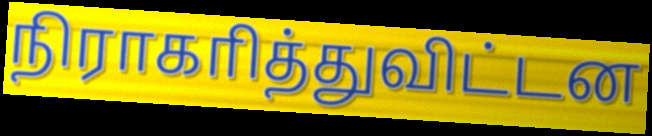
நிராகரித்துவிட்டன